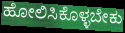
ಹೋಲಿಸಿಕೊಳ್ಳಬೇಕು